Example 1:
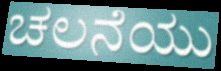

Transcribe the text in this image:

ಚಲನೆಯು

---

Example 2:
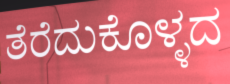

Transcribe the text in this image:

ತೆರೆದುಕೊಳ್ಳದ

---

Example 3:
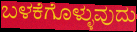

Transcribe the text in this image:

ಬಳಕೆಗೊಳ್ಳುವುದು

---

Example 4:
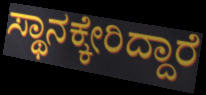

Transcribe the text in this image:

ಸ್ಥಾನಕ್ಕೇರಿದ್ದಾರೆ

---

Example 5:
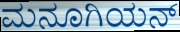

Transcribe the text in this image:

ಮನೂಗಿಯನ್